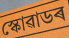
স্কোৱাডৰ